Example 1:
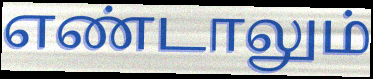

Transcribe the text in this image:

எண்டாலும்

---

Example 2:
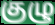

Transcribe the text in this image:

குழு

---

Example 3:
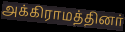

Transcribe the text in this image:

அக்கிராமத்தினர்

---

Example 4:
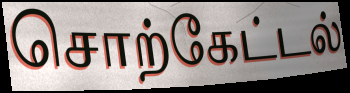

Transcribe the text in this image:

சொற்கேட்டல்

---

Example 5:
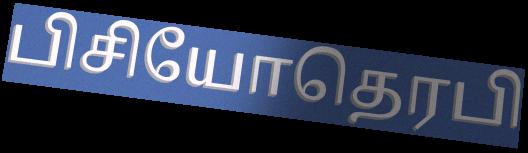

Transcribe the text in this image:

பிசியோதெரபி